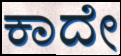
ಕಾದೇ